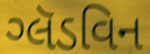
ગ્લૅડવિન